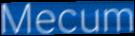
Mecum